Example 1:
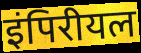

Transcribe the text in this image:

इंपिरीयल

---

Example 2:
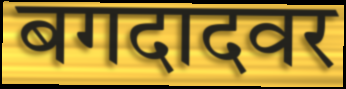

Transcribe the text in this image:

बगदादवर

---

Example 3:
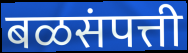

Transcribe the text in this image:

बळसंपत्ती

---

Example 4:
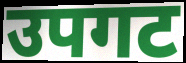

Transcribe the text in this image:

उपगट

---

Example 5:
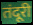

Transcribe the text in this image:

तंदूरी